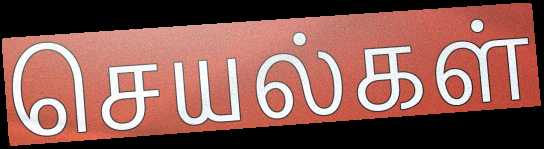
செயல்கள்